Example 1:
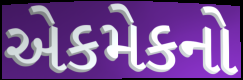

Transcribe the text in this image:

એકમેકનો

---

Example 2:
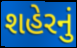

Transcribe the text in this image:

શહેરનું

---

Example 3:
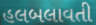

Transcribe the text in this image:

હલબલાવતી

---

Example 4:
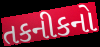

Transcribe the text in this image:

તકનીકનો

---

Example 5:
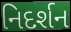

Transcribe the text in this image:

નિદર્શન